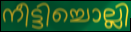
നീട്ടിച്ചൊല്ലി